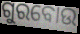
ଗୁରବୋଉ